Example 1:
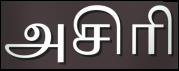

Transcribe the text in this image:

அசிரி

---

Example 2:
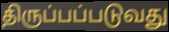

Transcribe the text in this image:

திருப்பப்படுவது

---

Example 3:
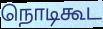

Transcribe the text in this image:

நொடிகூட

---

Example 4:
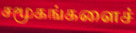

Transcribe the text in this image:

சமூகங்களைச்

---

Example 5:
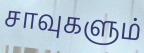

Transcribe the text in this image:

சாவுகளும்